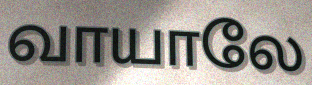
வாயாலே